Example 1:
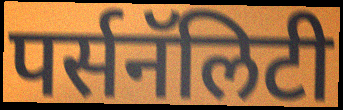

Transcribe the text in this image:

पर्सनॅलिटी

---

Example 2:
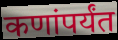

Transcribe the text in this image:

कणांपर्यंत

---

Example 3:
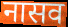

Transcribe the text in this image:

नासव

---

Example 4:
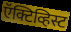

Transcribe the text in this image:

ऍक्टिव्हिस्ट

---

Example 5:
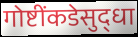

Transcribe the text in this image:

गोष्टींकडेसुद्धा